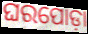
ଘରପୋଡ଼ା